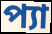
প্যা